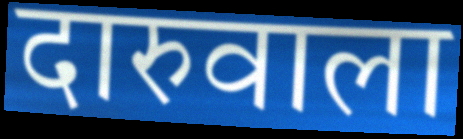
दारुवाला